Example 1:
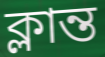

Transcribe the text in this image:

ক্লান্ত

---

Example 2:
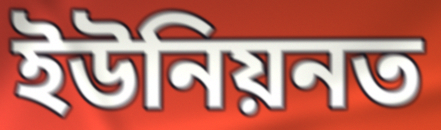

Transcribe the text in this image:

ইউনিয়নত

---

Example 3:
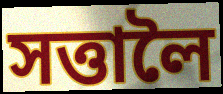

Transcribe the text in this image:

সত্তালৈ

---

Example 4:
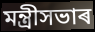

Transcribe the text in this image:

মন্ত্ৰীসভাৰ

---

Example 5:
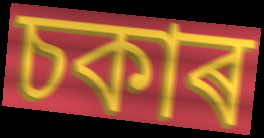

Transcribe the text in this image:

চকাৰ